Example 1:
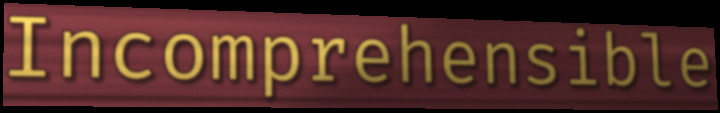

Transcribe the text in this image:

Incomprehensible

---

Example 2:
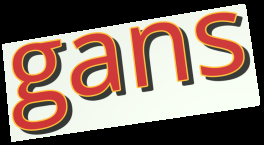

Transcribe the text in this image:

gans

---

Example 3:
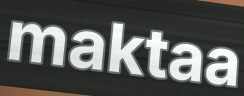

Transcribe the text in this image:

maktaa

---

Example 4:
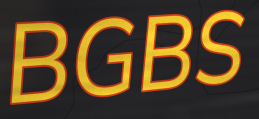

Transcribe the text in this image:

BGBS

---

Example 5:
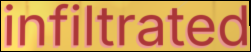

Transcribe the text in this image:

infiltrated